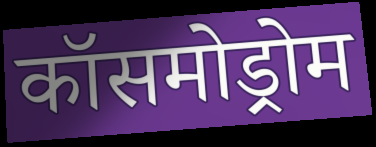
कॉसमोड्रोम